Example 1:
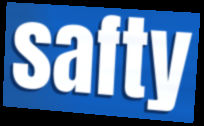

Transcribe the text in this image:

safty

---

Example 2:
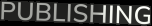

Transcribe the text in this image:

PUBLISHING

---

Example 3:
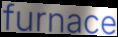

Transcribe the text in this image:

furnace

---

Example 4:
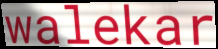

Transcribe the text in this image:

walekar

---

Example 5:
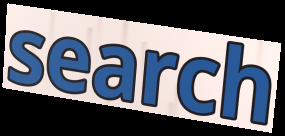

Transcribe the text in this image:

search